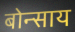
बोन्साय